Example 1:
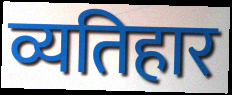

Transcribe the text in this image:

व्यतिहार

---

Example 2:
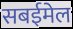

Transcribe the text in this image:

सबईमेल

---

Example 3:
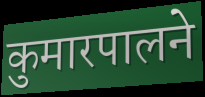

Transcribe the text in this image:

कुमारपालने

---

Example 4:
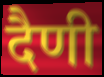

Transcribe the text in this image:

दैणी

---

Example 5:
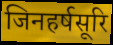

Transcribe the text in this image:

जिनहर्षसूरि